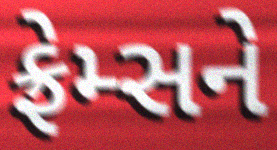
ફ્રેમ્સને